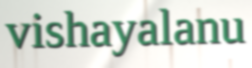
vishayalanu